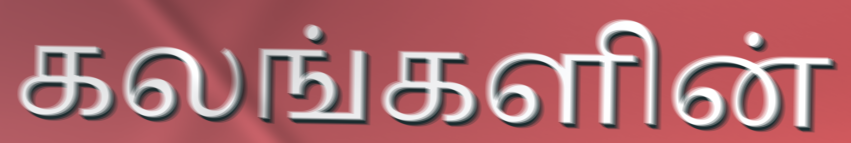
கலங்களின்